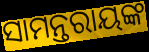
ସାମନ୍ତରାୟଙ୍କ